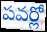
పవర్లో